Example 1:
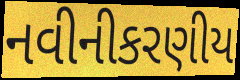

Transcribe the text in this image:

નવીનીકરણીય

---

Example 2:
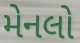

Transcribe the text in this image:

મેનલો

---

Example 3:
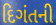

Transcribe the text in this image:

દિગંતની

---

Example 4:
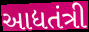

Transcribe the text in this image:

આદ્યતંત્રી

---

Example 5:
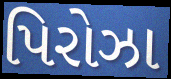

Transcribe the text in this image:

પિરોઝા